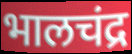
भालचंद्र